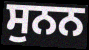
ਸੁਨਨ